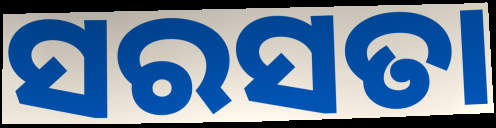
ସରସତା